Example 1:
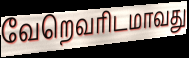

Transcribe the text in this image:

வேறெவரிடமாவது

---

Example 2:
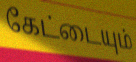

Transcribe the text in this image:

கேட்டையும்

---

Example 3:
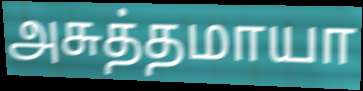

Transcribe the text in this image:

அசுத்தமாயா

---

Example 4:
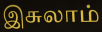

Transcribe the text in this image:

இசுலாம்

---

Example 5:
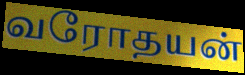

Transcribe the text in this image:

வரோதயன்